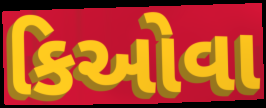
કિઓવા